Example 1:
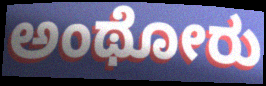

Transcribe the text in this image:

ಅಂಥೋರು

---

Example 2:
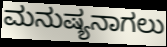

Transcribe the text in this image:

ಮನುಷ್ಯನಾಗಲು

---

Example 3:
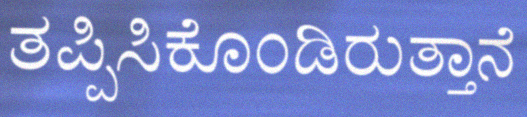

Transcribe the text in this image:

ತಪ್ಪಿಸಿಕೊಂಡಿರುತ್ತಾನೆ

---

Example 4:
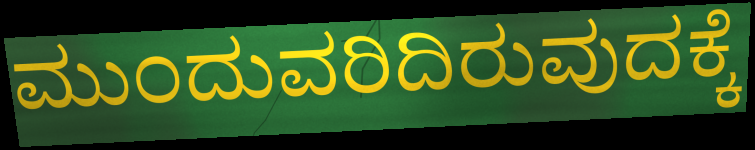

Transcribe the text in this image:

ಮುಂದುವರಿದಿರುವುದಕ್ಕೆ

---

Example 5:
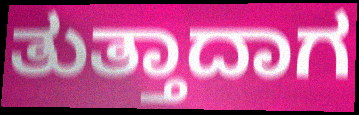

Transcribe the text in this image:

ತುತ್ತಾದಾಗ